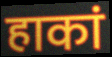
हाकां